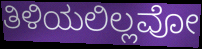
ತಿಳಿಯಲಿಲ್ಲವೋ